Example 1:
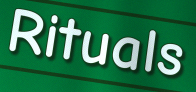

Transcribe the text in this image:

Rituals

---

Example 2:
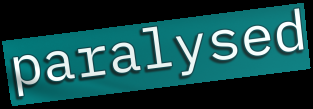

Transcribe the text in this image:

paralysed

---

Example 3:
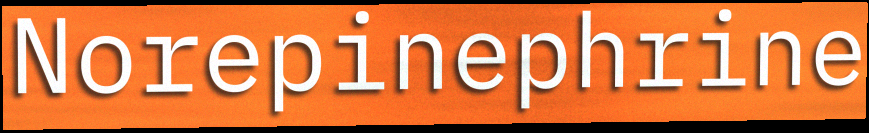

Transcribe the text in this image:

Norepinephrine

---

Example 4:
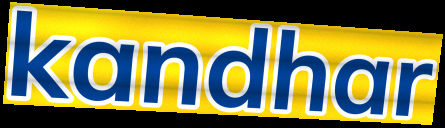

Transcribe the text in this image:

kandhar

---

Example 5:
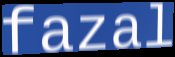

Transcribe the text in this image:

fazal